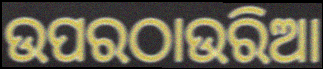
ଉପରଠାଉରିଆ